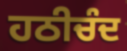
ਹਠੀਚੰਦ